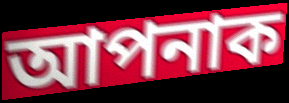
আপনাক